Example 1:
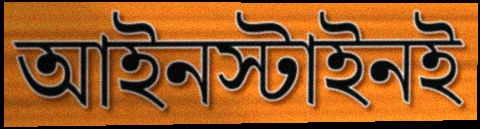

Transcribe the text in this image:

আইনস্টাইনই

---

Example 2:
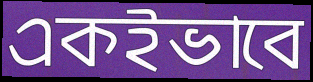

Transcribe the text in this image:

একইভাবে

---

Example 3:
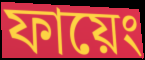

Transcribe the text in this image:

ফায়েং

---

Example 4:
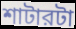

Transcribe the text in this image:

শাটারটা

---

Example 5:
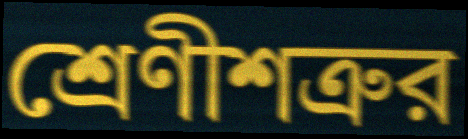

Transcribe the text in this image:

শ্রেণীশত্রুর